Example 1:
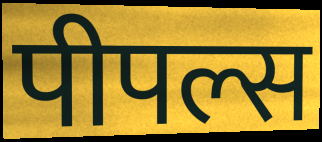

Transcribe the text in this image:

पीपल्स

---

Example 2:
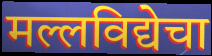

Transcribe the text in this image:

मल्लविद्येचा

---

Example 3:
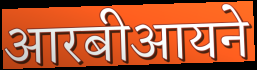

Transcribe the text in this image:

आरबीआयने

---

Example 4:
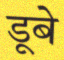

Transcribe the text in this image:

डूबे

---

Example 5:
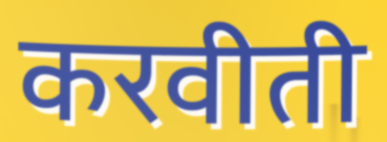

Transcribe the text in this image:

करवीती